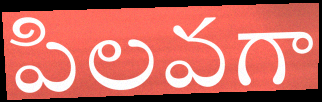
పిలవగా